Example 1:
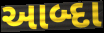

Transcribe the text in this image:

આબ્દા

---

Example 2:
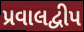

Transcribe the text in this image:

પ્રવાલદ્વીપ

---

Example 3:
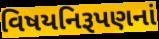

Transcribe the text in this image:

વિષયનિરૂપણનાં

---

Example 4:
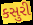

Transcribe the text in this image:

કસુરી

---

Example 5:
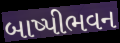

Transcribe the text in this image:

બાષ્પીભવન